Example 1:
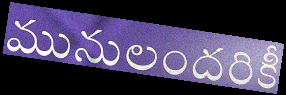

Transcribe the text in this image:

మునులందరికీ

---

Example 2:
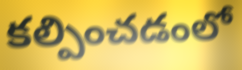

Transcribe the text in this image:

కల్పించడంలో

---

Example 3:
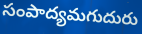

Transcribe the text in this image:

సంపాద్యమగుదురు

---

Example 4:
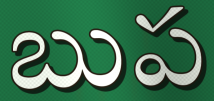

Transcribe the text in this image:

బుప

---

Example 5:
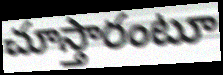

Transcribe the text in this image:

చూస్తారంటూ